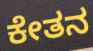
ಕೇತನ